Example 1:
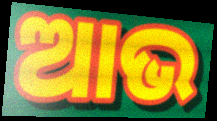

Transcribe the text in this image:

ଆଭ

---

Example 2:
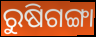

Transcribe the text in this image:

ରୁଷିଗଙ୍ଗା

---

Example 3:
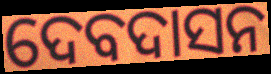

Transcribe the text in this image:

ଦେବଦାସନ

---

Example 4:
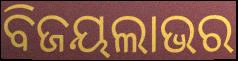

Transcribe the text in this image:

ବିଜୟଲାଭର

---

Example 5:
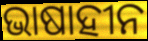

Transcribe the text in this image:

ଭାଷାହୀନ